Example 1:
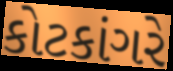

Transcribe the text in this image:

કોટકાંગરે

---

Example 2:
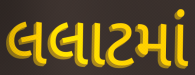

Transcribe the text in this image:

લલાટમાં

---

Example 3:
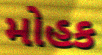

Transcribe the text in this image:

મોહક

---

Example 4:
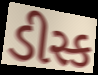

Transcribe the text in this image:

ડીસ્ક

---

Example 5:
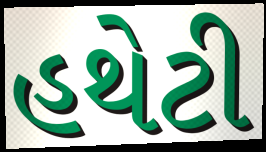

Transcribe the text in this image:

હથેટી